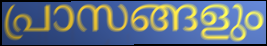
പ്രാസങ്ങളും